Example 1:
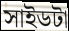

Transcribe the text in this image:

সাইডটা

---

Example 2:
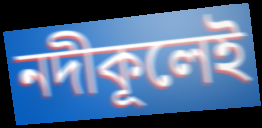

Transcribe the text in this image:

নদীকূলেই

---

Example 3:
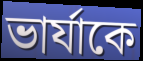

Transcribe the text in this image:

ভার্যাকে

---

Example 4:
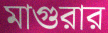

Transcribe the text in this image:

মাগুরার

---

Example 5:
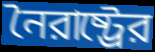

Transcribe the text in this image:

নৈরাষ্ট্রের